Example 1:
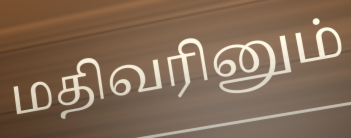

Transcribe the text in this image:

மதிவரினும்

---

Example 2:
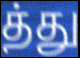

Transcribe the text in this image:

த்து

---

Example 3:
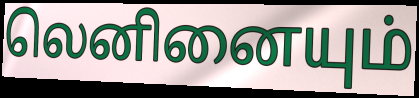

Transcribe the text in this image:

லெனினையும்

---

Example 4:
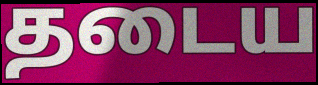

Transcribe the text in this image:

தடைய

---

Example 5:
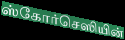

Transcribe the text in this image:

ஸ்கோர்செஸியின்